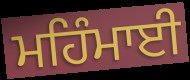
ਮਹਿੰਮਾਈ